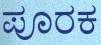
ಪೂರಕ